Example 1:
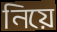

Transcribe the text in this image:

নিয়ে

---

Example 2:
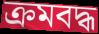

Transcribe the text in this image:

ক্ৰমবদ্ধ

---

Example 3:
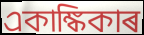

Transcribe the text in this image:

একাঙ্কিকাৰ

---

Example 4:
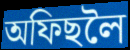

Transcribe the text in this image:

অফিছলৈ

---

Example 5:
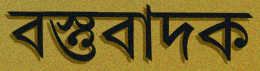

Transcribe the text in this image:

বস্তুবাদক